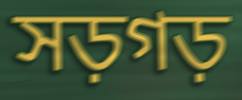
সড়গড়